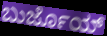
ಬುರ್ಜೊಯ್